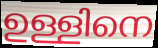
ഉള്ളിനെ